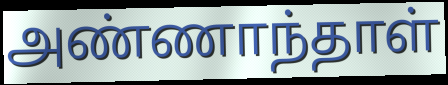
அண்ணாந்தாள்